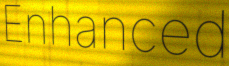
Enhanced